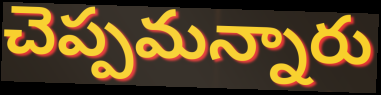
చెప్పమన్నారు